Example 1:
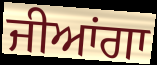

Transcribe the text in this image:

ਜੀਆਂਗਾ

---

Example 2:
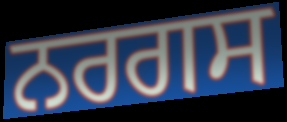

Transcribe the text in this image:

ਨਰਗਸ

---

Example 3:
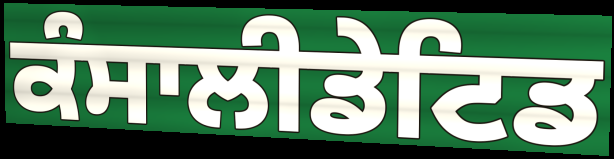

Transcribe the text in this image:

ਕੰਸਾਲੀਡੇਟਿਡ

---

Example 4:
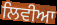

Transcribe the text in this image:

ਲਿਵੀਆ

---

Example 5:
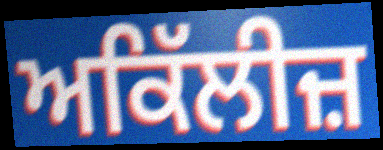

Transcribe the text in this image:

ਅਕਿੱਲੀਜ਼